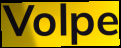
Volpe